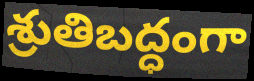
శ్రుతిబద్ధంగా